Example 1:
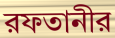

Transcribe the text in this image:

রফতানীর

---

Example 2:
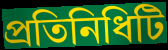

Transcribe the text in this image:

প্রতিনিধিটি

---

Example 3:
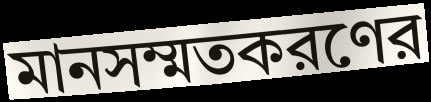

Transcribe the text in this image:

মানসম্মতকরণের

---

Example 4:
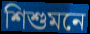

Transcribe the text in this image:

শিশুমনে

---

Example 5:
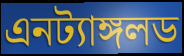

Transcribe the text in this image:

এনট্যাঙ্গলড